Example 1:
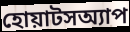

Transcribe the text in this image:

হোয়াটসঅ্যাপ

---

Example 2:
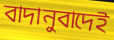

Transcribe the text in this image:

বাদানুবাদেই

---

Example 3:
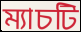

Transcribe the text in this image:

ম্যাচটি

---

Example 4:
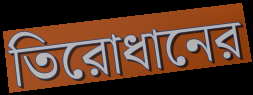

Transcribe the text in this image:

তিরোধানের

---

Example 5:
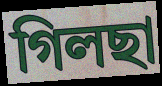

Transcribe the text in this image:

গিলছা